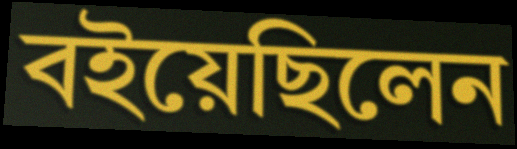
বইয়েছিলেন